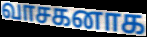
வாசகனாக